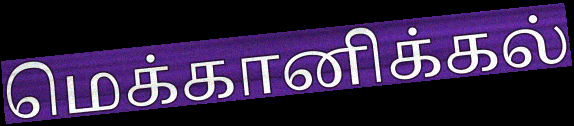
மெக்கானிக்கல்